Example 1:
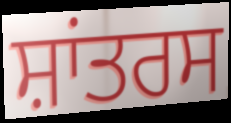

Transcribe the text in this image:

ਸ਼ਾਂਤਰਸ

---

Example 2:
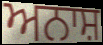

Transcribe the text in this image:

ਅਨਾਸ਼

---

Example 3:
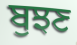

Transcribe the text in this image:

ਬੁਝਣ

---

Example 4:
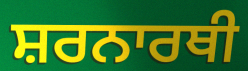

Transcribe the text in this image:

ਸ਼ਰਨਾਰਥੀ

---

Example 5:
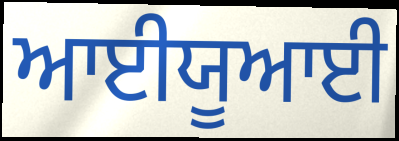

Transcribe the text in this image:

ਆਈਯੂਆਈ